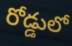
రోడ్డులో